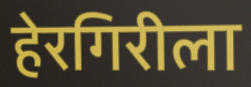
हेरगिरीला